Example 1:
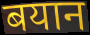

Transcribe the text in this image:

बयान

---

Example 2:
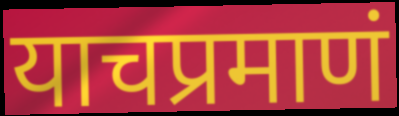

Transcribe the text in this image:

याचप्रमाणं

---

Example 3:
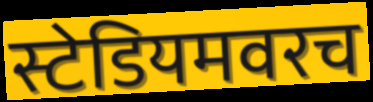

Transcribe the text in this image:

स्टेडियमवरच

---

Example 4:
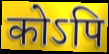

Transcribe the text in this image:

कोऽपि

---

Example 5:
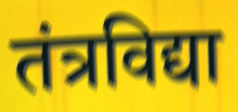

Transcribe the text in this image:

तंत्रविद्या